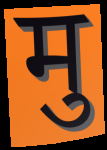
मु